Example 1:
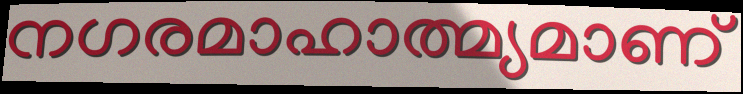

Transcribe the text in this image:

നഗരമാഹാത്മ്യമാണ്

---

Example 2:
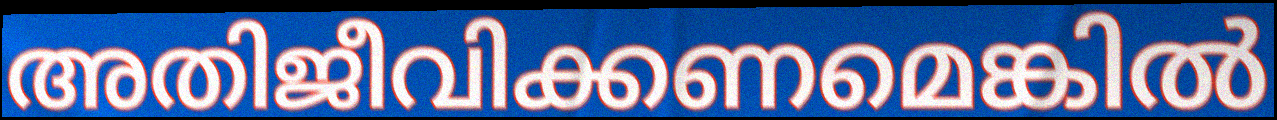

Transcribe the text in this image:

അതിജീവിക്കണമെങ്കിൽ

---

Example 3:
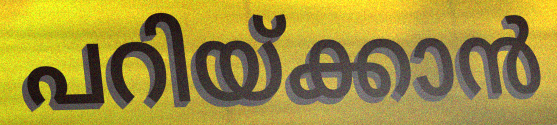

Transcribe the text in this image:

പറിയ്ക്കാൻ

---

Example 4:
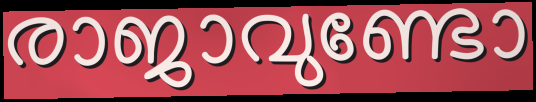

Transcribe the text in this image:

രാജാവുണ്ടോ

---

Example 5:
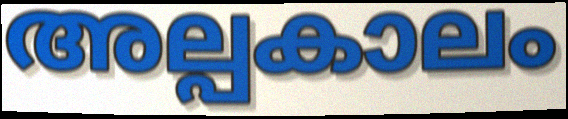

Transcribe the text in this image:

അല്പകാലം